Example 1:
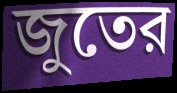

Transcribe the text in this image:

জুতের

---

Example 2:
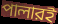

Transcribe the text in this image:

পালারই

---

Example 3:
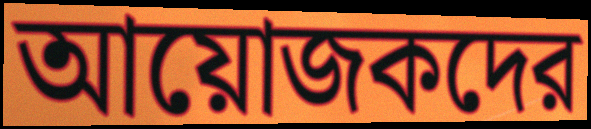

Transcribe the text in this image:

আয়োজকদের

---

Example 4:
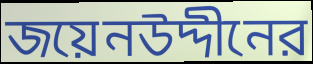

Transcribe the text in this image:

জয়েনউদ্দীনের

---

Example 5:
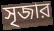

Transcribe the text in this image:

সৃজার